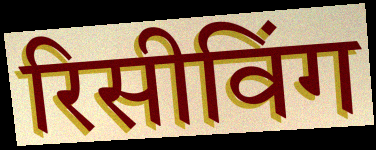
रिसीविंग